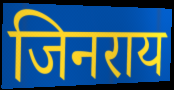
जिनराय